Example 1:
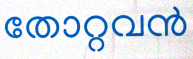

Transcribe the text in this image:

തോറ്റവൻ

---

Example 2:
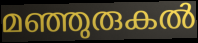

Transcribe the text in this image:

മഞ്ഞുരുകൽ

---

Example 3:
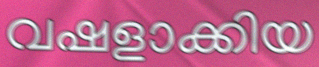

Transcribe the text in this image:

വഷളാക്കിയ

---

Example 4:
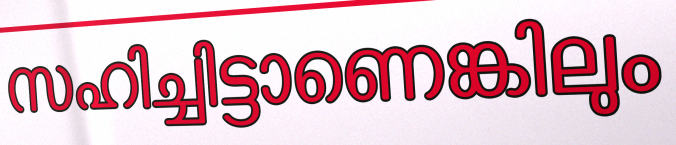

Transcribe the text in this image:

സഹിച്ചിട്ടാണെങ്കിലും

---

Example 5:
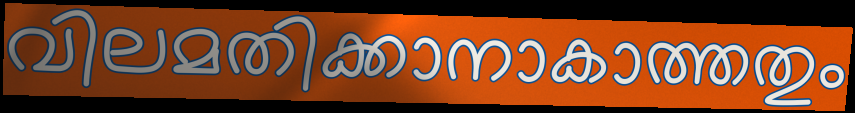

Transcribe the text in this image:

വിലമതിക്കാനാകാത്തതും